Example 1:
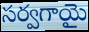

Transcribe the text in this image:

సర్వగాయై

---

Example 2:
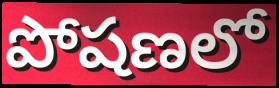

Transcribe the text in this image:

పోషణలో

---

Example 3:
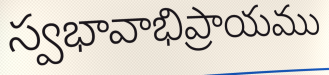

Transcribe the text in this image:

స్వభావాభిప్రాయము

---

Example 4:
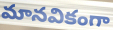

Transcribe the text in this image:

మానవికంగా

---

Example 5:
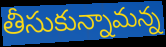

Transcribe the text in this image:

తీసుకున్నామన్న